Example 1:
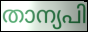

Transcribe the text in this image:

താന്യപി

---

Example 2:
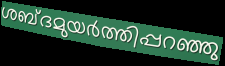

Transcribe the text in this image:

ശബ്ദമുയർത്തിപ്പറഞ്ഞു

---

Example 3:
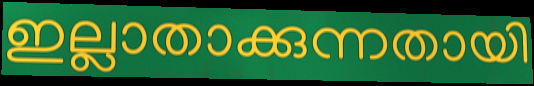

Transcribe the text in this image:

ഇല്ലാതാക്കുന്നതായി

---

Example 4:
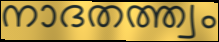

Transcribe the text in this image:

നാദതത്ത്വം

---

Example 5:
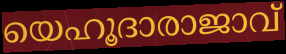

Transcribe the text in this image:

യെഹൂദാരാജാവ്